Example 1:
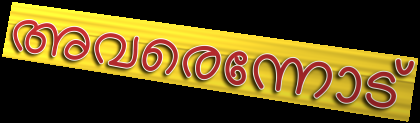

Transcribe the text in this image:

അവരെന്നോട്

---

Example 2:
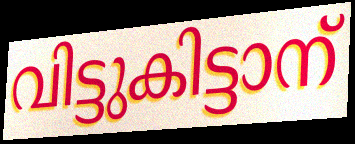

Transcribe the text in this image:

വിട്ടുകിട്ടാന്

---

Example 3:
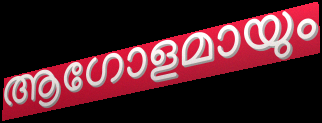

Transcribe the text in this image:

ആഗോളമായും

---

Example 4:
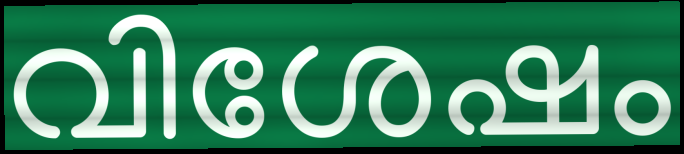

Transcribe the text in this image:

വിശേഷം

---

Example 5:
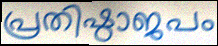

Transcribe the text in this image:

പ്രതിഷ്ഠാജപം